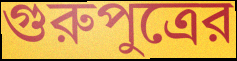
গুরুপুত্রের